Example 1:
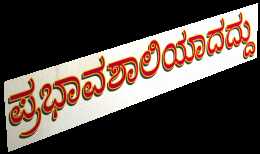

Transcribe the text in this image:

ಪ್ರಭಾವಶಾಲಿಯಾದದ್ದು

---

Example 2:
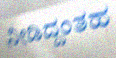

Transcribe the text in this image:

ನೀಡಿದ್ದಂತಹ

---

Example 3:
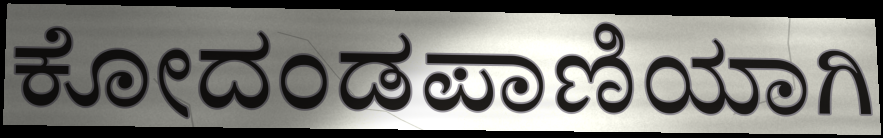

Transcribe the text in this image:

ಕೋದಂಡಪಾಣಿಯಾಗಿ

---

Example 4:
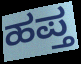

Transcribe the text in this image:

ಹಪ್ತ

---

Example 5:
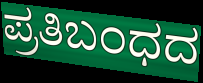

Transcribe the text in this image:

ಪ್ರತಿಬಂಧದ